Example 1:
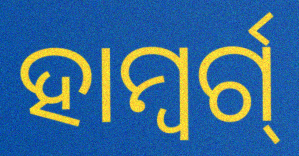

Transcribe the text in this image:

ହାମ୍ବର୍ଗ୍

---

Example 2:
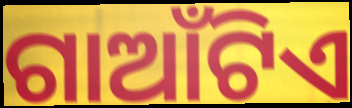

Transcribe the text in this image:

ଗାଆଁଟିଏ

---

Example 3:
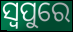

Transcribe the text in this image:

ସ୍ୱପୁରେ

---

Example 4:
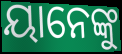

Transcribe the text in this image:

ୟାନେଙ୍କୁ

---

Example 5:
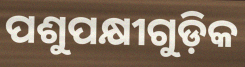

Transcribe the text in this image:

ପଶୁପକ୍ଷୀଗୁଡ଼ିକ